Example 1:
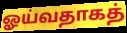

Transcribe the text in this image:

ஓய்வதாகத்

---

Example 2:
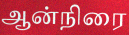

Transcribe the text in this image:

ஆன்நிரை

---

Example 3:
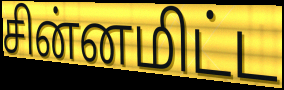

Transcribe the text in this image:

சின்னமிட்ட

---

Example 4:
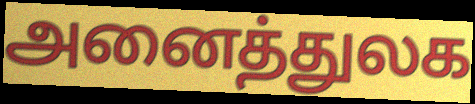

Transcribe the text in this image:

அனைத்துலக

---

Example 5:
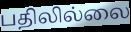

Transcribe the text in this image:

பதிலில்லை